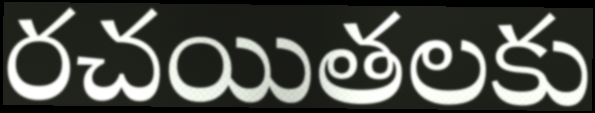
రచయితలకు